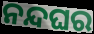
ନନ୍ଦଘର